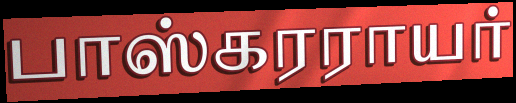
பாஸ்கரராயர்